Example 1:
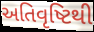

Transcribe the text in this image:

અતિવૃષ્ટિથી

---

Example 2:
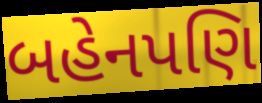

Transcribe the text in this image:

બહેનપણિ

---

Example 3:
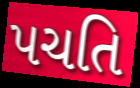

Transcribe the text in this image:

પચતિ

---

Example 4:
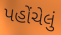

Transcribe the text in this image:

પહોંચેલું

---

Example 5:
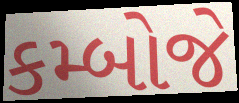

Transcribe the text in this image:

કમ્બોજે